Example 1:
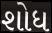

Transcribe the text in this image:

શોધ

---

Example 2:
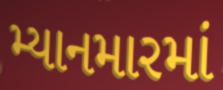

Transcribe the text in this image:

મ્યાનમારમાં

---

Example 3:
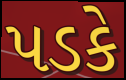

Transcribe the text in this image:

પડકે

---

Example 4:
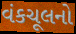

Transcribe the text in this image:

વંકચૂલનો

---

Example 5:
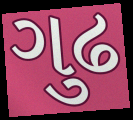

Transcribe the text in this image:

ગુઢ